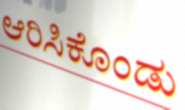
ಆರಿಸಿಕೊಂಡು